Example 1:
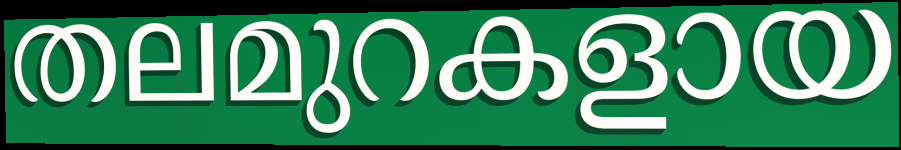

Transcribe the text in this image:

തലമുറകളായ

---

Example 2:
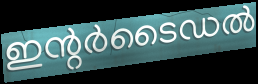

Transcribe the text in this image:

ഇന്റർടൈഡൽ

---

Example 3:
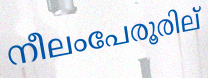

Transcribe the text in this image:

നീലംപേരൂരില്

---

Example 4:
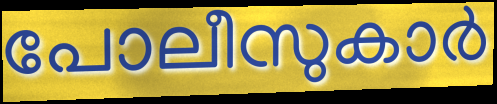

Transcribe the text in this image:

പോലീസുകാർ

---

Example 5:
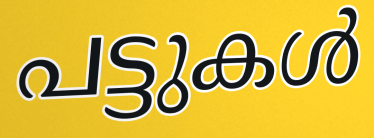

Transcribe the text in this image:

പട്ടുകൾ